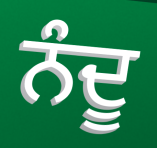
ਨੰਦੂ